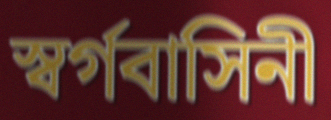
স্বর্গবাসিনী